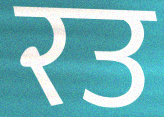
रउ